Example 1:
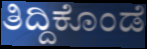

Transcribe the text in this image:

ತಿದ್ದಿಕೊಂಡೆ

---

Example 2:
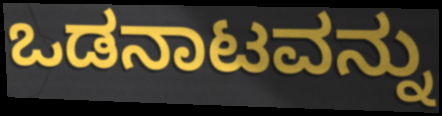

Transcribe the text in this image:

ಒಡನಾಟವನ್ನು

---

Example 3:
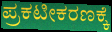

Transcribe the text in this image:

ಪ್ರಕಟೀಕರಣಕ್ಕೆ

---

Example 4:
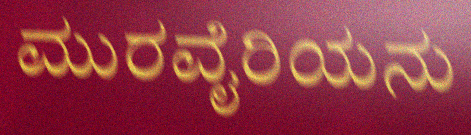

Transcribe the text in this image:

ಮುರವೈರಿಯನು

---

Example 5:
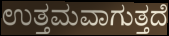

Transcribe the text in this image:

ಉತ್ತಮವಾಗುತ್ತದೆ